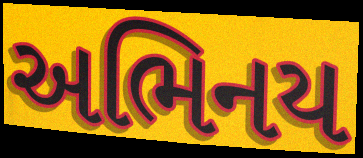
અભિનય